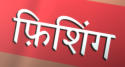
फ़िशिंग